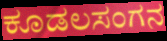
ಕೂಡಲಸಂಗನ